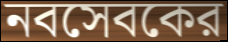
নবসেবকের